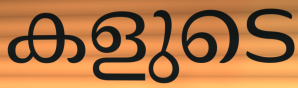
കളുടെ